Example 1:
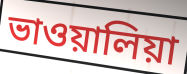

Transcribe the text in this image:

ভাওয়ালিয়া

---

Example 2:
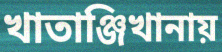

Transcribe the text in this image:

খাতাঞ্জিখানায়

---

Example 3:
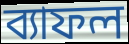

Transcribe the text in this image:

ব্যাফল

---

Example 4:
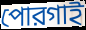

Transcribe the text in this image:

পোরগাই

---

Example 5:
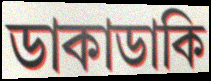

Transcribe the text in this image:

ডাকাডাকি